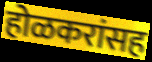
होळकरांसह